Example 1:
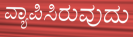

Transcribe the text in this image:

ವ್ಯಾಪಿಸಿರುವುದು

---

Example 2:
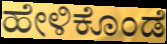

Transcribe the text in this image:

ಹೇಳಿಕೊಂಡೆ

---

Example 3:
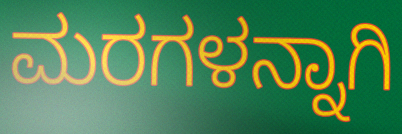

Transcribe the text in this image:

ಮರಗಳನ್ನಾಗಿ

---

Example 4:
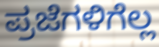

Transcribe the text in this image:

ಪ್ರಜೆಗಳಿಗೆಲ್ಲ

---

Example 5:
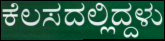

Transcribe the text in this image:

ಕೆಲಸದಲ್ಲಿದ್ದಳು